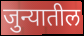
जुन्यातील